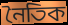
নৈতিক